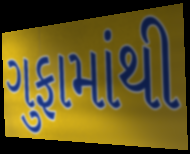
ગુફામાંથી